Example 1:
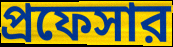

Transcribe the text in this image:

প্রফেসার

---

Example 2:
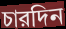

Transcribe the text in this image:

চারদিন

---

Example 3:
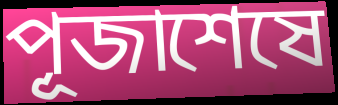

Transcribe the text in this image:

পূজাশেষে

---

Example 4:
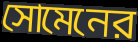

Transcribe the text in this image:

সোমেনের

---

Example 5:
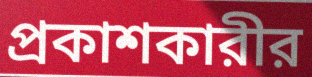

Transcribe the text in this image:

প্রকাশকারীর